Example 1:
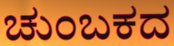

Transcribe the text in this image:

ಚುಂಬಕದ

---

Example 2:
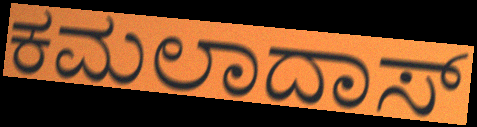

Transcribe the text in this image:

ಕಮಲಾದಾಸ್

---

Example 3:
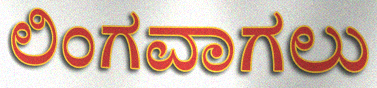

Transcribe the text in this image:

ಲಿಂಗವಾಗಲು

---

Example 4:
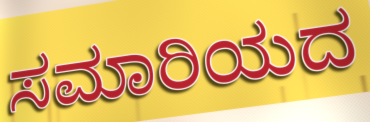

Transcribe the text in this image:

ಸಮಾರಿಯದ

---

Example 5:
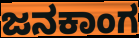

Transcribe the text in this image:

ಜನಕಾಂಗ